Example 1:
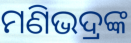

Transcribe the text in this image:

ମଣିଭଦ୍ରଙ୍କ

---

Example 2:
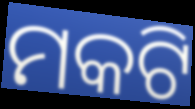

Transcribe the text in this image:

ମକଟି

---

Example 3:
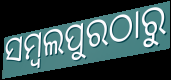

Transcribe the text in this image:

ସମ୍ବଲପୁରଠାରୁ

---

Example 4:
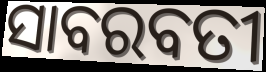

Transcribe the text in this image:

ସାବରବତୀ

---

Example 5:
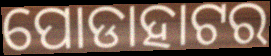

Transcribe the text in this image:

ପୋଡାହାଟର